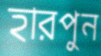
হারপুন